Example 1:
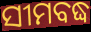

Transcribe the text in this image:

ସୀମବଦ୍ଧ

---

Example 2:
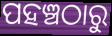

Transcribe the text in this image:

ପହଞ୍ଚଠାରୁ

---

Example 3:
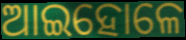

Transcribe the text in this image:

ଆଇହୋଳେ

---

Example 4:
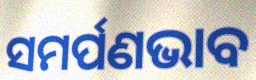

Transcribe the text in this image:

ସମର୍ପଣଭାବ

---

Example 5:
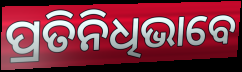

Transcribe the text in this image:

ପ୍ରତିନିଧିଭାବେ